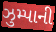
ઝુમ્પાની